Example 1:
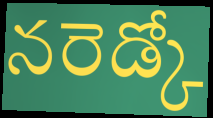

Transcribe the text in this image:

నరెడ్కో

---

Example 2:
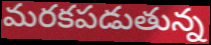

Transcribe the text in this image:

మరకపడుతున్న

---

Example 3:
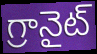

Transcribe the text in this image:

గ్రానైట్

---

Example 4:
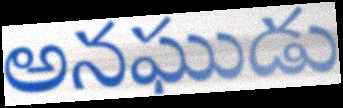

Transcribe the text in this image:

అనఘుడు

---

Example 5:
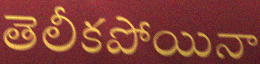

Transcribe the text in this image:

తెలీకపోయినా